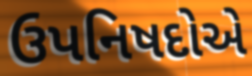
ઉપનિષદોએ